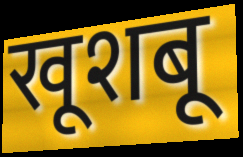
खूशबू